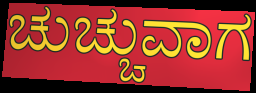
ಚುಚ್ಚುವಾಗ